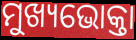
ମୁଖ୍ୟଭୋକ୍ତା